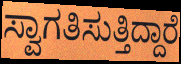
ಸ್ವಾಗತಿಸುತ್ತಿದ್ದಾರೆ